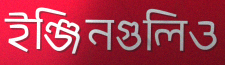
ইঞ্জিনগুলিও